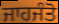
ਜਾਹਜੰਤੋ